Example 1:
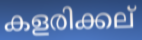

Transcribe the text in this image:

കളരിക്കല്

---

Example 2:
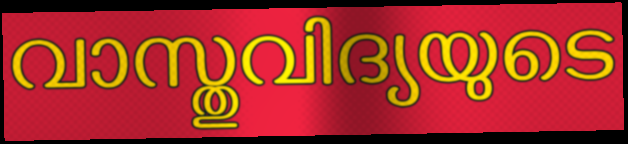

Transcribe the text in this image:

വാസ്തുവിദ്യയുടെ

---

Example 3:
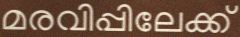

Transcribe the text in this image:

മരവിപ്പിലേക്ക്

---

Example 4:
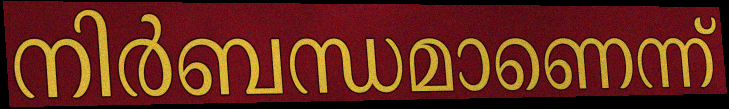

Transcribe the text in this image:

നിർബന്ധമാണെന്ന്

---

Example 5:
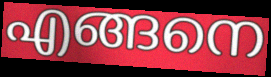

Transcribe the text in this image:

എങ്ങനെ